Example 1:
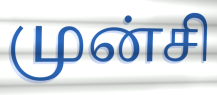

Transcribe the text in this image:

முன்சி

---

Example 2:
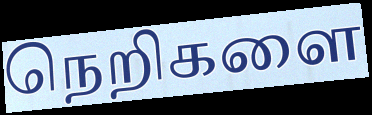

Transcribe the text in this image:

நெறிகளை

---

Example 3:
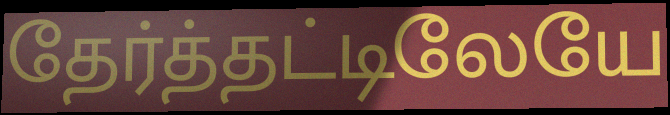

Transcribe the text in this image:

தேர்த்தட்டிலேயே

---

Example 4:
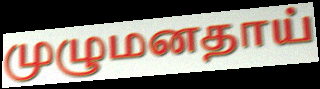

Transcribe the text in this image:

முழுமனதாய்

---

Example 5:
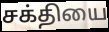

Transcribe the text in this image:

சக்தியை